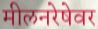
मीलनरेषेवर